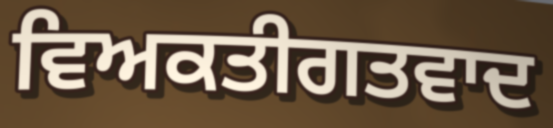
ਵਿਅਕਤੀਗਤਵਾਦ